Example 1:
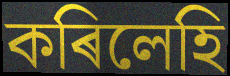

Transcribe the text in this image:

কৰিলেহি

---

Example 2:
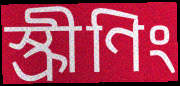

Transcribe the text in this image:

স্ক্ৰীণিং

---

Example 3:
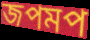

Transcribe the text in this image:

জপমপ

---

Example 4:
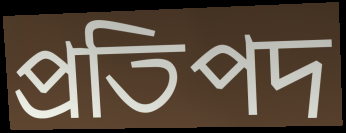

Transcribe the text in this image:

প্ৰতিপদ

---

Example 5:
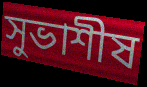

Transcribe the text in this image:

সুভাশীষ